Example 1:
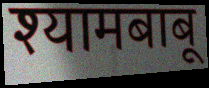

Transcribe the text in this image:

श्यामबाबू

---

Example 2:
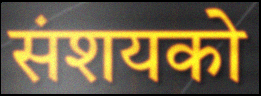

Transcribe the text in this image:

संशयको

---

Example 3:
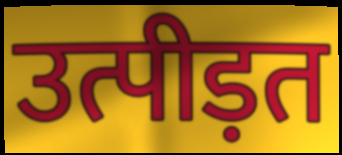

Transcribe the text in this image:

उत्पीड़त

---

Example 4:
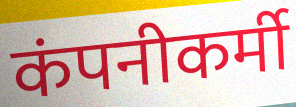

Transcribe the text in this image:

कंपनीकर्मी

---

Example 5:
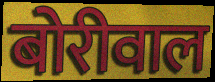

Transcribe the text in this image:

बोरीवाल